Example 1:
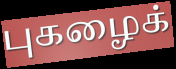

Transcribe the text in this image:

புகழைக்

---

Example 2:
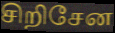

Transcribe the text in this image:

சிறிசேன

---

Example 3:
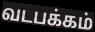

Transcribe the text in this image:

வடபக்கம்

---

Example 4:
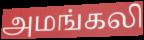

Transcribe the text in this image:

அமங்கலி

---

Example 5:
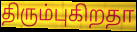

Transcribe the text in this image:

திரும்புகிறதா